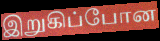
இறுகிப்போன